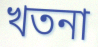
খতনা